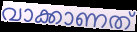
വാക്കാണത്